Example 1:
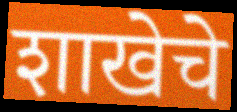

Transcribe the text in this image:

शाखेचे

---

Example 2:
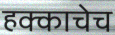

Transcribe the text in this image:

हक्काचेच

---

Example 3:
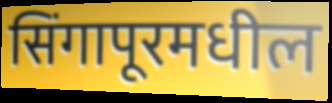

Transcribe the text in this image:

सिंगापूरमधील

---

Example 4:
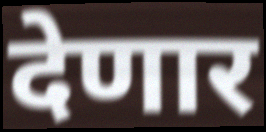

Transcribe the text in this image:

देणार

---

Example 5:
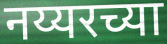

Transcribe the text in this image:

नय्यरच्या